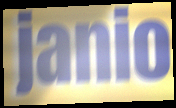
janio